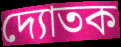
দ্যোতক